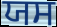
ਯਸ